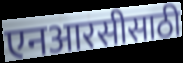
एनआरसीसाठी